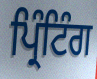
ਪ੍ਰਿੰਟਿੰਗ